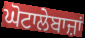
ਘੋਟਾਲੇਬਾਜ਼ਾਂ